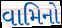
વામિનો